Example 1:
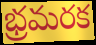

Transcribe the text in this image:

భ్రమరక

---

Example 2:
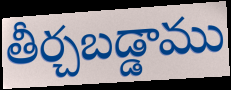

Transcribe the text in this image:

తీర్చబడ్డాము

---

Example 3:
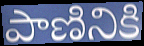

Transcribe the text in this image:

పాణినికి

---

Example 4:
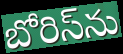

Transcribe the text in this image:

బోరిస్‌ను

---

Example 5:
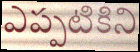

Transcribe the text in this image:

ఎప్పటికిని